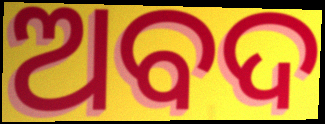
ଅବଦ